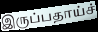
இருப்பதாய்ச்